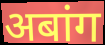
अबांग